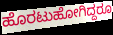
ಹೊರಟುಹೋಗಿದ್ದರೂ